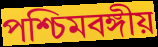
পশ্চিমবঙ্গীয়